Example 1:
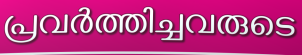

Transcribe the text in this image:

പ്രവർത്തിച്ചവരുടെ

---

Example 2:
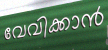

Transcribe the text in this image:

വേവിക്കാൻ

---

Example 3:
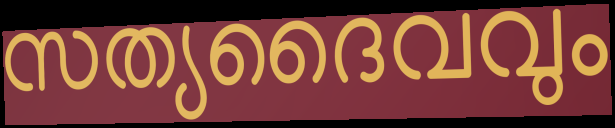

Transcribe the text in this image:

സത്യദൈവവും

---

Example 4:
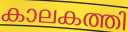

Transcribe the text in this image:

കാലകത്തി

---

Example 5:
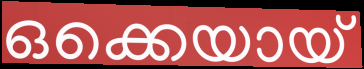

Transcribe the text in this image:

ഒക്കെയായ്